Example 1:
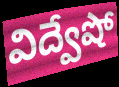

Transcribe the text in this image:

విద్వేషో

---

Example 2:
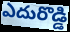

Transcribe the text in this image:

ఎదురొడ్డి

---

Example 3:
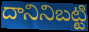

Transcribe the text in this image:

దానినిబట్టి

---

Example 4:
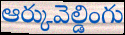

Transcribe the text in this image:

ఆర్కువెల్డింగు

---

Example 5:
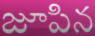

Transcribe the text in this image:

జూపిన